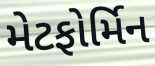
મેટફોર્મિન